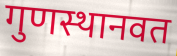
गुणस्थानवत